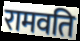
रामवति